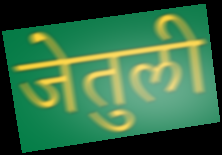
जेतुली